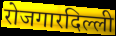
रोजगारदिल्ली